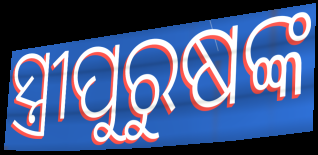
ସ୍ତ୍ରୀପୁରୁଷଙ୍କ